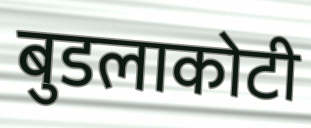
बुडलाकोटी